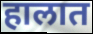
हालात